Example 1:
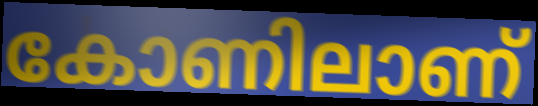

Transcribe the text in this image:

കോണിലാണ്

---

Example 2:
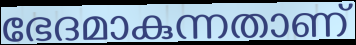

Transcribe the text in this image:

ഭേദമാകുന്നതാണ്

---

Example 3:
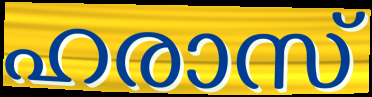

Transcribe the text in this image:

ഹരാസ്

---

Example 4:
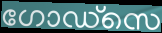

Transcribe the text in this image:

ഗോഡ്സെ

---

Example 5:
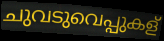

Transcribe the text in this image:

ചുവടുവെപ്പുകള്